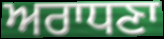
ਅਰਾਧਣਾ